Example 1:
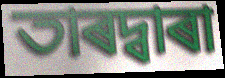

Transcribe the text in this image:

তাৰদ্বাৰা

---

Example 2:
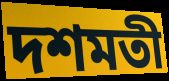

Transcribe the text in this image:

দশমতী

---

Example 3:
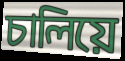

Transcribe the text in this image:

চালিয়ে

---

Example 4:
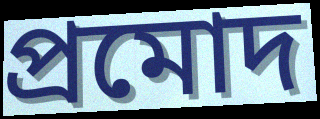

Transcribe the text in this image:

প্ৰমোদ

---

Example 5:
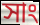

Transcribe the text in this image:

সাং